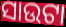
ସାଉଟା